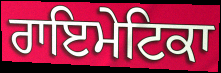
ਰਾਇਮੇਟਿਕਾ